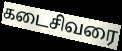
கடைசிவரை